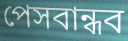
পেসবান্ধব